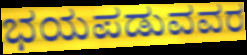
ಭಯಪಡುವವರ